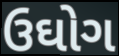
ઉઘોગ